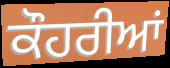
ਕੌਹਰੀਆਂ